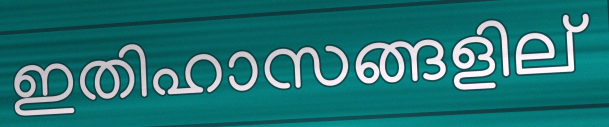
ഇതിഹാസങ്ങളില്